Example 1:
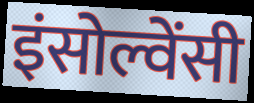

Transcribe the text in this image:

इंसोल्वेंसी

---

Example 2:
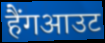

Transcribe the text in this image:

हैंगआउट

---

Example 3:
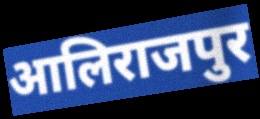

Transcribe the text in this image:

आलिराजपुर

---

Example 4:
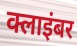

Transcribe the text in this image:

क्लाइंबर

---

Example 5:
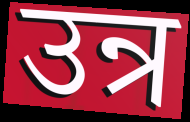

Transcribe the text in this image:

उन्र